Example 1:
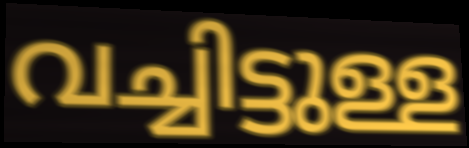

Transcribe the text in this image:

വച്ചിട്ടുള്ള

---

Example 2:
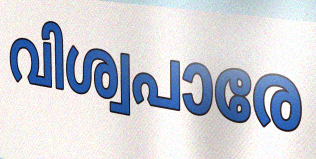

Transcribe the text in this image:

വിശ്വപാരേ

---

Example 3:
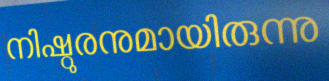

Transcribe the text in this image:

നിഷ്ഠുരനുമായിരുന്നു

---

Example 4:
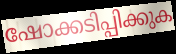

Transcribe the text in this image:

ഷോക്കടിപ്പിക്കുക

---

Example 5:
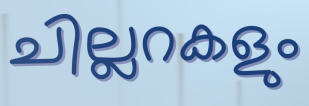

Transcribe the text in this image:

ചില്ലറകളും